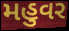
મહુવર